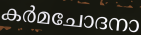
കർമചോദനാ